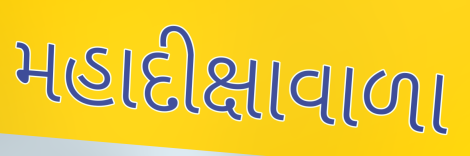
મહાદીક્ષાવાળા